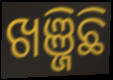
ଖଞ୍ଜିଛି